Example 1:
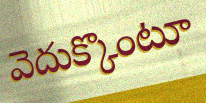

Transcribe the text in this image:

వెదుక్కొంటూ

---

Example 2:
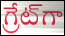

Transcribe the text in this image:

గ్రేట్‌గా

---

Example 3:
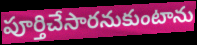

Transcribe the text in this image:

పూర్తిచేసారనుకుంటాను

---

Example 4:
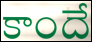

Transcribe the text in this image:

కాందే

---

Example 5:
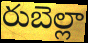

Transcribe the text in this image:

రుబెల్లా